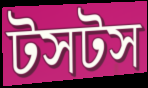
টসটস